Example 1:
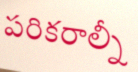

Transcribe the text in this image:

పరికరాల్నీ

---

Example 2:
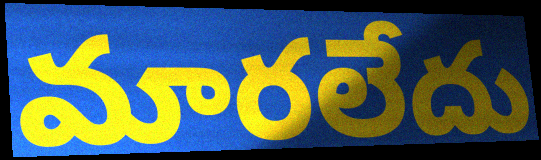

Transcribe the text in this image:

మారలేదు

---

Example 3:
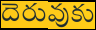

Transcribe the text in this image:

దెరువుకు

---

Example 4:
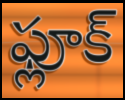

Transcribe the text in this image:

ఫ్లూక్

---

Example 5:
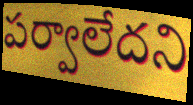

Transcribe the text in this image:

పర్వాలేదని